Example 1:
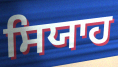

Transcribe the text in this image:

ਸਿਯਾਹ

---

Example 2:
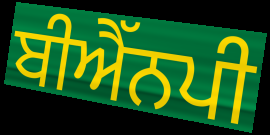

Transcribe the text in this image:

ਬੀਐੱਨਪੀ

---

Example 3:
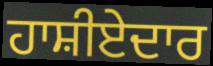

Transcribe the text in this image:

ਹਾਸ਼ੀਏਦਾਰ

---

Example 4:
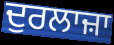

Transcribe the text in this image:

ਦੁਰਲਾਜ਼ਾ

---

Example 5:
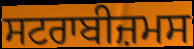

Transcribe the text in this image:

ਸਟਰਾਬੀਜ਼ਮਸ